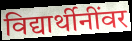
विद्यार्थीनींवर